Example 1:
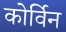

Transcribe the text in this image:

कोर्विन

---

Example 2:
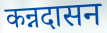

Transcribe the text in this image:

कन्नदासन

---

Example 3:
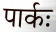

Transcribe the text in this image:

पार्कः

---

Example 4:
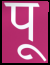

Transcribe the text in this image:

पू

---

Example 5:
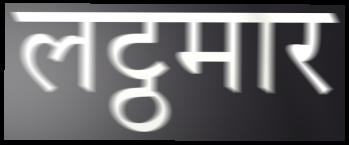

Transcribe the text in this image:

लट्ठमार